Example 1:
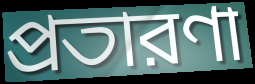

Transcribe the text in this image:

প্রতারণা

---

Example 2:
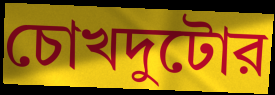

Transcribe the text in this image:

চোখদুটোর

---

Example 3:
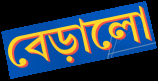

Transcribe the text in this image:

বেড়ালো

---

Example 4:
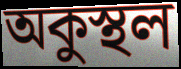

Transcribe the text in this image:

অকুস্থল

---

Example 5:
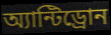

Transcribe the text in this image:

অ্যান্টিড্রোন